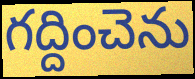
గద్దించెను